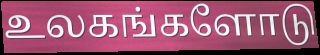
உலகங்களோடு